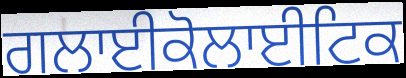
ਗਲਾਈਕੋਲਾਈਟਿਕ